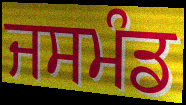
ਜਸਮੰਡ